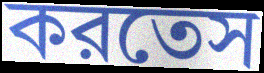
করতেস